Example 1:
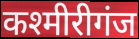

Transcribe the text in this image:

कश्मीरीगंज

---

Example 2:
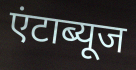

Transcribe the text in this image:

एंटाब्यूज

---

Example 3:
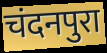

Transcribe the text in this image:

चंदनपुरा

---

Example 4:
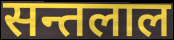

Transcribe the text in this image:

सन्तलाल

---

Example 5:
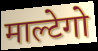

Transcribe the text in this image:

माल्टेगो